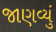
જાણવ્યું